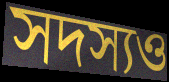
সদস্যও